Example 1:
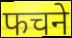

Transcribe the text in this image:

फचने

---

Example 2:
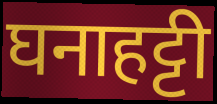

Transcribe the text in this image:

घनाहट्टी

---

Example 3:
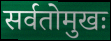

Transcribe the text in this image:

सर्वतोमुखः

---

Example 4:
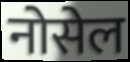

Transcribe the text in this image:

नोसेल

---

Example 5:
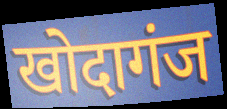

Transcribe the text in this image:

खोदागंज